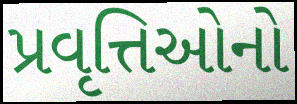
પ્રવૃત્તિઓનો